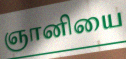
ஞானியை